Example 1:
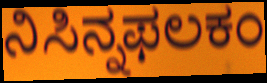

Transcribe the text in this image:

ನಿಸಿನ್ನಫಲಕಂ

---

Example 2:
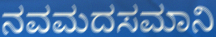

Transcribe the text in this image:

ನವಮದಸಮಾನಿ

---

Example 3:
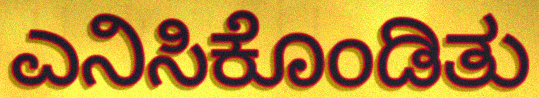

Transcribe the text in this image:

ಎನಿಸಿಕೊಂಡಿತು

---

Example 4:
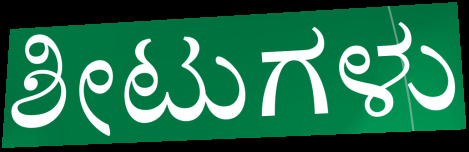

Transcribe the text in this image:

ಶೀಟುಗಳು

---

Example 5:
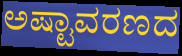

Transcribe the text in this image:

ಅಷ್ಟಾವರಣದ